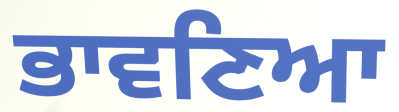
ਭਾਵਣਿਆ